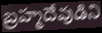
బ్రహ్మదేవుడిని